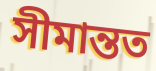
সীমান্তত